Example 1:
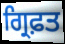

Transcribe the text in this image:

ਗ੍ਰਿਫ਼ਤ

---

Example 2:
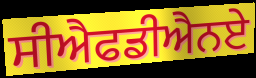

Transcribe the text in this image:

ਸੀਐਫਡੀਐਨਏ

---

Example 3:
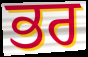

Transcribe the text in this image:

ਭਰ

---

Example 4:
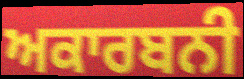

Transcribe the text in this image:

ਅਕਾਰਬਨੀ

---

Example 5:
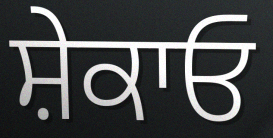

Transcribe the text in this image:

ਸ਼ੇਕਾਓ